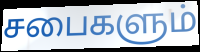
சபைகளும்